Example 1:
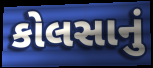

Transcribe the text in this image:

કોલસાનું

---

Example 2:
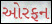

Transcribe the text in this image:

ઓરફન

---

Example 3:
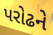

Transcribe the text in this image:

પરોઢને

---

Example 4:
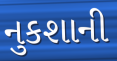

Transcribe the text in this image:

નુકશાની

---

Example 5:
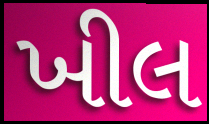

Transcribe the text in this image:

ખીલ